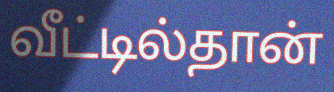
வீட்டில்தான்